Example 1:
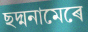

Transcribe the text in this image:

ছদ্মনামেৰে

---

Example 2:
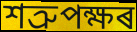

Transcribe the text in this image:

শত্ৰুপক্ষৰ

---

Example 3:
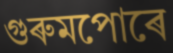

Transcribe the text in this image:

গুৰুমপোৰে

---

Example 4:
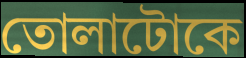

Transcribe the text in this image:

তোলাটোকে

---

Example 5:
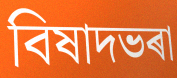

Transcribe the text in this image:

বিষাদভৰা